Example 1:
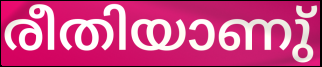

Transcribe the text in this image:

രീതിയാണു്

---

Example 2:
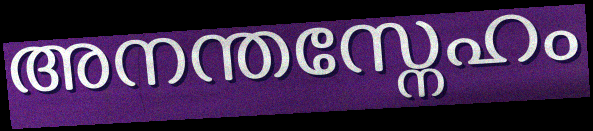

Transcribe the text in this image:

അനന്തസ്നേഹം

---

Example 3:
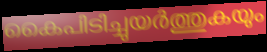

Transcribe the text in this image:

കൈപിടിച്ചുയർത്തുകയും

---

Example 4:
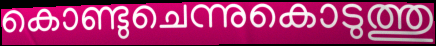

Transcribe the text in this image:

കൊണ്ടുചെന്നുകൊടുത്തു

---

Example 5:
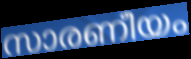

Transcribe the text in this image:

സാരണീയം